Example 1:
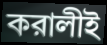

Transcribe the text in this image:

করালীই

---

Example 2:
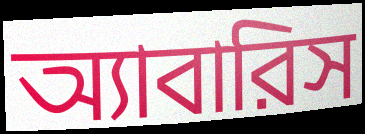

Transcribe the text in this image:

অ্যাবারিস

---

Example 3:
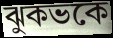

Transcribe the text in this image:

ঝুকভকে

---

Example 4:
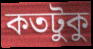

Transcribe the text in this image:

কতটুকু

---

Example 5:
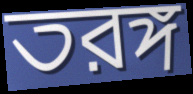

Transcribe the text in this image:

তরঙ্গ